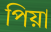
পিয়া